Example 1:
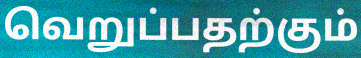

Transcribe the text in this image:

வெறுப்பதற்கும்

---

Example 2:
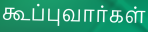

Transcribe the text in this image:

கூப்புவார்கள்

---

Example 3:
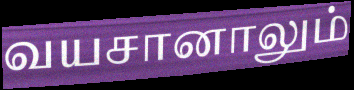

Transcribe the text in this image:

வயசானாலும்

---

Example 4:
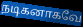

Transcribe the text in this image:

நடிகனாகவே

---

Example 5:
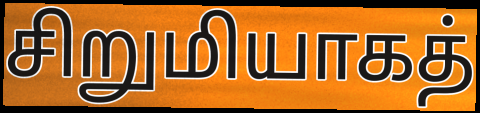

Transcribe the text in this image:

சிறுமியாகத்